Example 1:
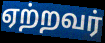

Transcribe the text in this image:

ஏற்றவர்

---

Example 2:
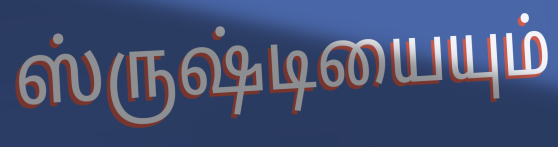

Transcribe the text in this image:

ஸ்ருஷ்டியையும்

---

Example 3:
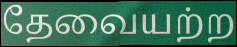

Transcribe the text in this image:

தேவையற்ற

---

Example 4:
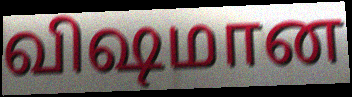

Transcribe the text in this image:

விஷமான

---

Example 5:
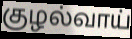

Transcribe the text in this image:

குழல்வாய்